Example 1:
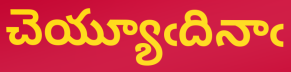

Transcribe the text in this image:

చెయ్యూఁదినాఁ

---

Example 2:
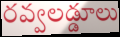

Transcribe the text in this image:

రవ్వలడ్డూలు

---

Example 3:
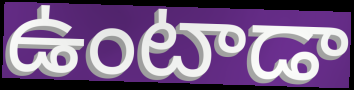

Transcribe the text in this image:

ఉంటాడా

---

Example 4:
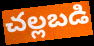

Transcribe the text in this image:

చల్లబడి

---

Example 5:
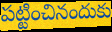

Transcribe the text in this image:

పట్టించినందుకు